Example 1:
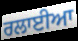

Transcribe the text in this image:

ਰਲਾਈਆ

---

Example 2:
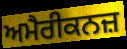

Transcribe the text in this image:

ਅਮੈਰੀਕਨਜ਼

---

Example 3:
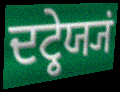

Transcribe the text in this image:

ਦਟ੍ਠੇਯ੍ਯਂ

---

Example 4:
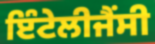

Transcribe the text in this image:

ਇੰਟੇਲੀਜੈਂਸੀ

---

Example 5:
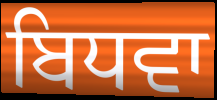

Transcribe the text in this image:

ਬਿਧਵਾ